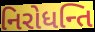
નિરોધન્તિ